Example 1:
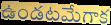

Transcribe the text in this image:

ఉండటమేగాక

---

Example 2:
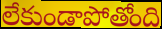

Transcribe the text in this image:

లేకుండాపోతోంది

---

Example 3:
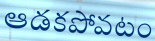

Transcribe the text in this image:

ఆడకపోవటం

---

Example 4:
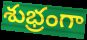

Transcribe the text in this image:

శుభ్రంగా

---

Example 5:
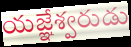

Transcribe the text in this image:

యజ్ఞేశ్వరుడు